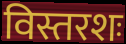
विस्तरशः